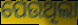
ପେଉଥିଲା